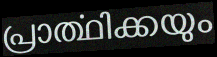
പ്രാൎത്ഥിക്കയും